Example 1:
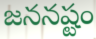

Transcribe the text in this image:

జననష్టం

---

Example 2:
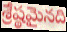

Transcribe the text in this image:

శ్రేష్ఠమైనది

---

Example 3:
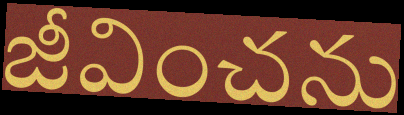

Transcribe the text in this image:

జీవించను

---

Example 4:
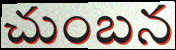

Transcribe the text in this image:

చుంబన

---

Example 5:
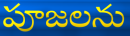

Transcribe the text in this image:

పూజలను